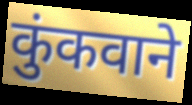
कुंकवाने